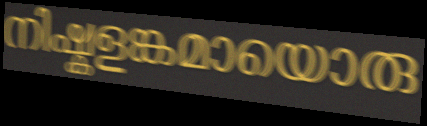
നിഷ്കളങ്കമായൊരു